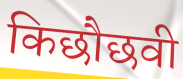
किछौछवी